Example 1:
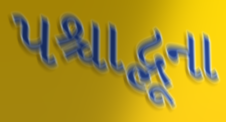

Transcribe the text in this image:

પશ્ચાદ્ભૂના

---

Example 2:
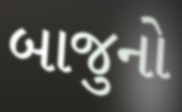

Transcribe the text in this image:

બાજુનો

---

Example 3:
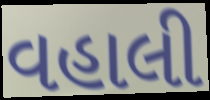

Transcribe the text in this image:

વહાલી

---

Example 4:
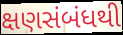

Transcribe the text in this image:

ક્ષણસંબંધથી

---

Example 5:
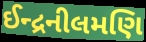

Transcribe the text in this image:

ઈન્દ્રનીલમણિ